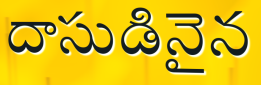
దాసుడినైన